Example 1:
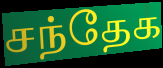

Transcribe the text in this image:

சந்தேக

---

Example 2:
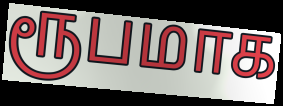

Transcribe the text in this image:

ரூபமாக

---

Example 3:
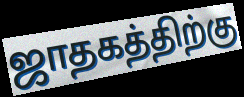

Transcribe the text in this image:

ஜாதகத்திற்கு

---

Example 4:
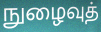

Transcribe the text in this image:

நுழைவுத்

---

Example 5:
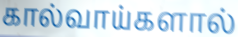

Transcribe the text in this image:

கால்வாய்களால்